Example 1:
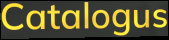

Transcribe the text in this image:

Catalogus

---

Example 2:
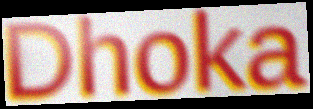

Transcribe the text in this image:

Dhoka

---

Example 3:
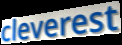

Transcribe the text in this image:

cleverest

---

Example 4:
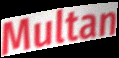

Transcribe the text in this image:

Multan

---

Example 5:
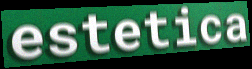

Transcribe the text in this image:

estetica